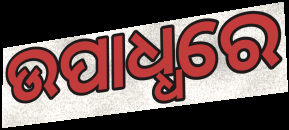
ଉପାଧ୍ଧରେ